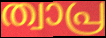
ത്വാപ്ര